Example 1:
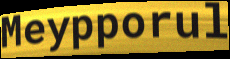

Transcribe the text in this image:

Meypporul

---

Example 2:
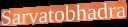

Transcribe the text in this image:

Sarvatobhadra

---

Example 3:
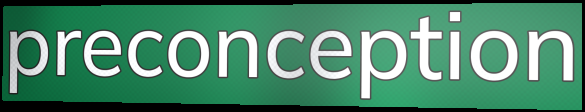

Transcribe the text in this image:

preconception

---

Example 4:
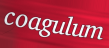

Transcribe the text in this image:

coagulum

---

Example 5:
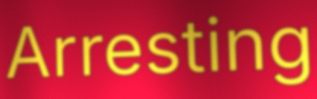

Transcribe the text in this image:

Arresting